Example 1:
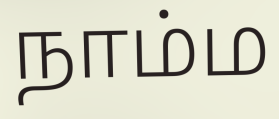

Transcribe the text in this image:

நாம்ம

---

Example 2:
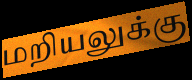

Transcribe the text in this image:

மறியலுக்கு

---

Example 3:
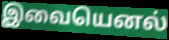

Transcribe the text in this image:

இவையெனல்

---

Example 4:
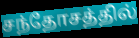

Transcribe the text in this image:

சந்தோசத்தில்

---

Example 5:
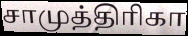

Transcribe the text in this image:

சாமுத்திரிகா